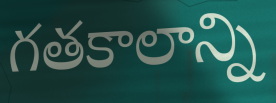
గతకాలాన్ని